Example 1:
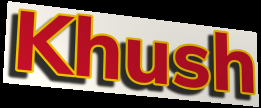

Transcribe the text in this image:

Khush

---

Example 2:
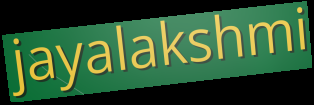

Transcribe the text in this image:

jayalakshmi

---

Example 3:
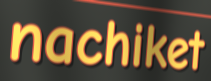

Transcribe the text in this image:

nachiket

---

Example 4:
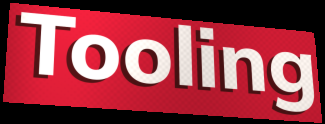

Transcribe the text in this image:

Tooling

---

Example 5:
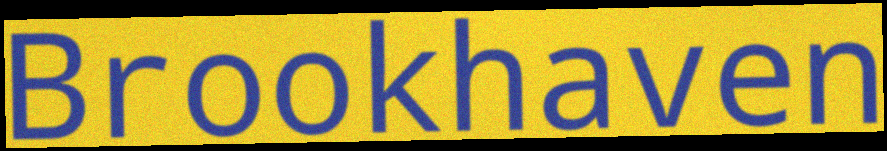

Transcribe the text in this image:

Brookhaven